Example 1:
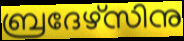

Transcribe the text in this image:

ബ്രദേഴ്സിനു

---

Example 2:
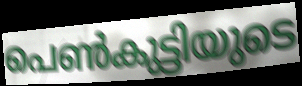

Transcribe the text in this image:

പെൺകുട്ടിയുടെ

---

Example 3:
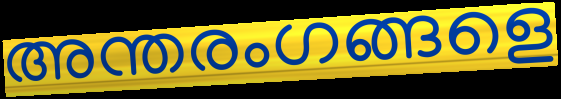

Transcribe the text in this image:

അന്തരംഗങ്ങളെ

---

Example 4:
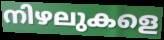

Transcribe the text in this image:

നിഴലുകളെ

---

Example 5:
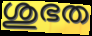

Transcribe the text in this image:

ശുഭത